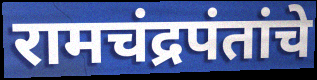
रामचंद्रपंतांचे